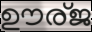
ഊര്ജ